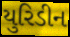
યુરિડીન